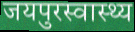
जयपुरस्वास्थ्य